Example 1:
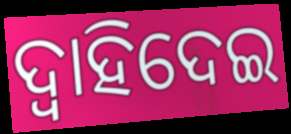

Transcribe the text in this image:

ଦ୍ୱାହିଦେଇ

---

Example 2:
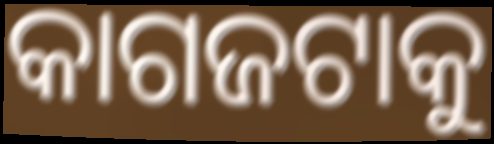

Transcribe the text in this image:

କାଗଜଟାକୁ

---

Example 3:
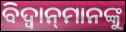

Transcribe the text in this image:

ବିଦ୍ଵାନ୍‌ମାନଙ୍କୁ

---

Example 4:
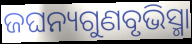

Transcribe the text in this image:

ଜଘନ୍ୟଗୁଣବୃଭିସ୍ମା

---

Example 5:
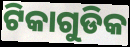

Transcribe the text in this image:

ଟିକାଗୁଡିକ